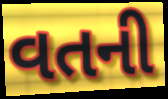
વતની